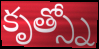
కృత్స్నో